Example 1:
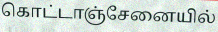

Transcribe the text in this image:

கொட்டாஞ்சேனையில்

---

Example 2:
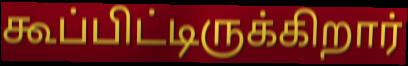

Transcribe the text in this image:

கூப்பிட்டிருக்கிறார்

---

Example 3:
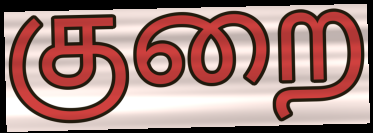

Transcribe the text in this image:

குறை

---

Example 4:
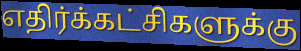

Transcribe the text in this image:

எதிர்க்கட்சிகளுக்கு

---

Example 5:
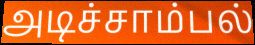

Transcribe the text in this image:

அடிச்சாம்பல்